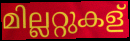
മില്ലറ്റുകള്